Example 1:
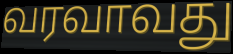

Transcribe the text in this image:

வரவாவது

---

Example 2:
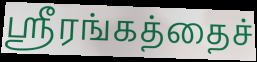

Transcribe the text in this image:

ஸ்ரீரங்கத்தைச்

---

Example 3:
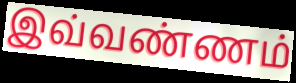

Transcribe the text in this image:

இவ்வண்ணம்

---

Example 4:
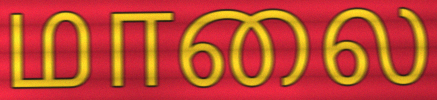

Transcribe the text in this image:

மாலை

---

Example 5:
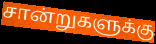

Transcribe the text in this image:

சான்றுகளுக்கு